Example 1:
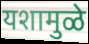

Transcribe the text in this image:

यशामुळे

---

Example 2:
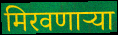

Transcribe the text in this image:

मिरवणाऱ्या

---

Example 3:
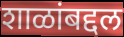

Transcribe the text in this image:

शाळांबद्दल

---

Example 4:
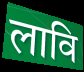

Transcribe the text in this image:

लावि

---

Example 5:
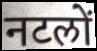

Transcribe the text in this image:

नटलों